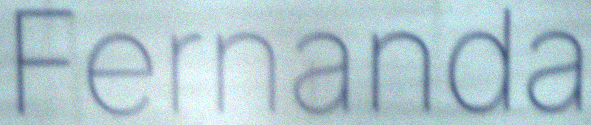
Fernanda